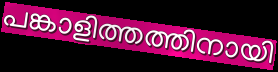
പങ്കാളിത്തത്തിനായി